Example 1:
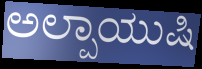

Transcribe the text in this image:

ಅಲ್ಪಾಯುಷಿ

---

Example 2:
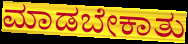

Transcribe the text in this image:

ಮಾಡಬೇಕಾತು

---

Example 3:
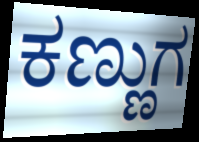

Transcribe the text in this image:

ಕಣ್ಣುಗ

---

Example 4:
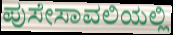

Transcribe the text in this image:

ಪುಸೇಸಾವಲಿಯಲ್ಲಿ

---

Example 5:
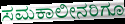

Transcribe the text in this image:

ಸಮಕಾಲೀನರಿಗೂ